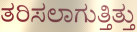
ತರಿಸಲಾಗುತ್ತಿತ್ತು